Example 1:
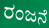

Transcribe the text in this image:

ರಂಜನೆ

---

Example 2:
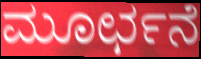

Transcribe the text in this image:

ಮೂರ್ಛನೆ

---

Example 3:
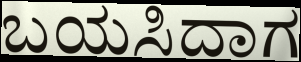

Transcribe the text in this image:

ಬಯಸಿದಾಗ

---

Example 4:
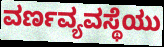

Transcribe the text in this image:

ವರ್ಣವ್ಯವಸ್ಥೆಯು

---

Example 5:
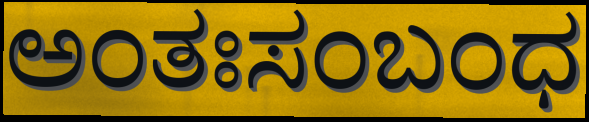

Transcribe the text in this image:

ಅಂತಃಸಂಬಂಧ